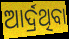
ଆର୍ଦ୍ରଥିବା